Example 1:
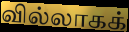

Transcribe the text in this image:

வில்லாகக்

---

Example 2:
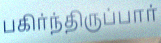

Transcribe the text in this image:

பகிர்ந்திருப்பார்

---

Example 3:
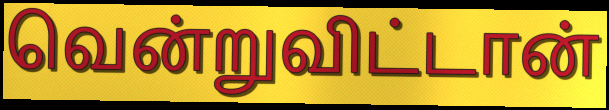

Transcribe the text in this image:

வென்றுவிட்டான்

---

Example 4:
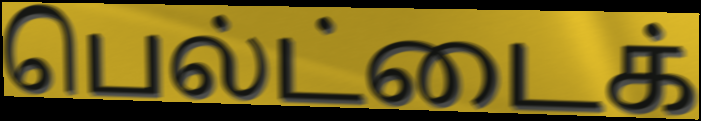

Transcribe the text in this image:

பெல்ட்டைக்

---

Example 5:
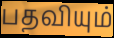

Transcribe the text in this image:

பதவியும்